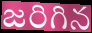
జరిగిన